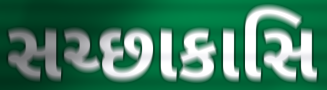
સચ્છાકાસિ